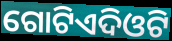
ଗୋଟିଏଦିଓଟି